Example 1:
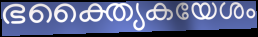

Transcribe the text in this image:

ഭക്ത്യൈകയേശം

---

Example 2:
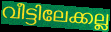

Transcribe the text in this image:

വീട്ടിലേക്കല്ല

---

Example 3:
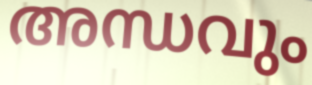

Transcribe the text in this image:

അന്ധവും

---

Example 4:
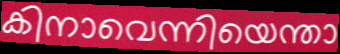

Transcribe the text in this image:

കിനാവെന്നിയെന്താ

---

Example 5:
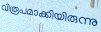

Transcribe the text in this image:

വിരൂപമാക്കിയിരുന്നു